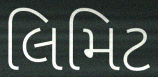
લિમિટ